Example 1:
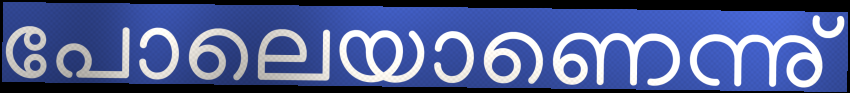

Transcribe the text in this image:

പോലെയാണെന്നു്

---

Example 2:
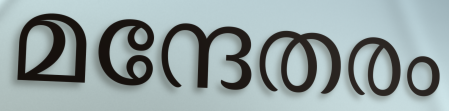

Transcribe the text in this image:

മന്ദേതരം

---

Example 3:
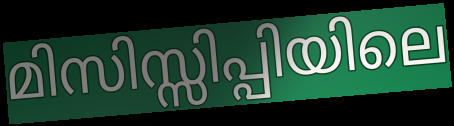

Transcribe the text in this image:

മിസിസ്സിപ്പിയിലെ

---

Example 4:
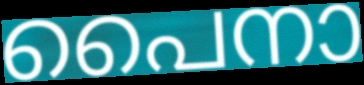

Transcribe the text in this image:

പൈനാ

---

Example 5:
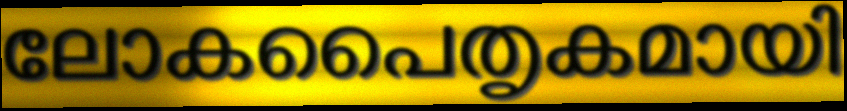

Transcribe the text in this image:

ലോകപൈതൃകമായി